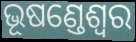
ଭୂଷଣ୍ଡେଶ୍ଵର